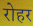
रोहर